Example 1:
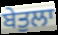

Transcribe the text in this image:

ਬੇਤੁਲਾ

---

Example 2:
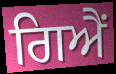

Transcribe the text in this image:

ਗਿਐਂ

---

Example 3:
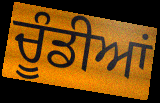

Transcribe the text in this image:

ਚੂੰਡੀਆਂ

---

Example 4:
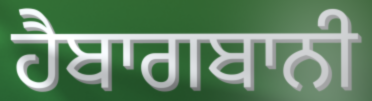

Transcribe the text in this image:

ਹੈਬਾਗਬਾਨੀ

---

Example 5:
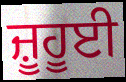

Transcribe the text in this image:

ਜ਼ੂਹੂਈ